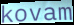
kovam